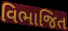
વિભાજિત